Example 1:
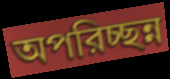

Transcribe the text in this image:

অপরিচ্ছন্ন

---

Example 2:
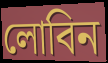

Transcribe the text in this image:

লোবিন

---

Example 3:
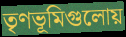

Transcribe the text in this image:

তৃণভূমিগুলোয়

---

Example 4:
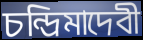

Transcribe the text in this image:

চন্দ্রিমাদেবী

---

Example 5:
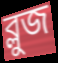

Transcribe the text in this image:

ব্লুজ